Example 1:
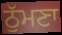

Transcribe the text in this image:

ਠੁੱਮਣਾ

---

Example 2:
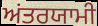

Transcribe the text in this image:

ਅਂਤਰਯਾਮੀ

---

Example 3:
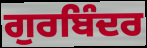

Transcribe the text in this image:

ਗੁਰਬਿੰਦਰ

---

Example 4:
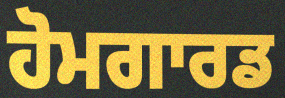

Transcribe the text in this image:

ਹੋਮਗਾਰਡ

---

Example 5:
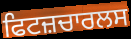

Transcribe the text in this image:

ਫਿਟਜ਼ਚਾਰਲਸ